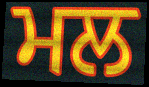
ਮਲ